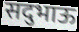
सदुभाऊ